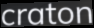
craton